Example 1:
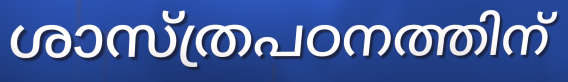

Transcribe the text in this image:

ശാസ്ത്രപഠനത്തിന്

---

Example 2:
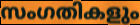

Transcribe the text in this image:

സംഗതികളും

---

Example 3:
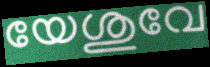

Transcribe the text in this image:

യേശുവേ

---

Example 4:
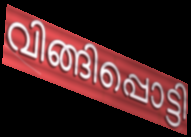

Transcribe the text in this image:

വിങ്ങിപ്പൊട്ടി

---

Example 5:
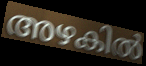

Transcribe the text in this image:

അഴകിൽ